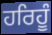
ਹਰਿਹੂੰ